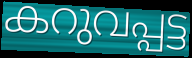
കറുവപ്പട്ട